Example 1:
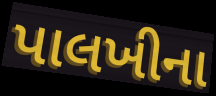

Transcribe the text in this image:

પાલખીના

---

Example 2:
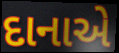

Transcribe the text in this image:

દાનાએ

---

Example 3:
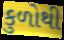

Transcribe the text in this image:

કુળોથી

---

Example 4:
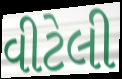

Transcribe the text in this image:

વીટેલી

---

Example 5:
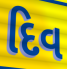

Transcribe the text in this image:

દિવ